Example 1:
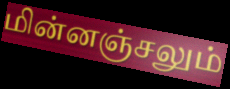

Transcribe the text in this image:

மின்னஞ்சலும்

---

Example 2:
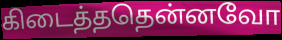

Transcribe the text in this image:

கிடைத்ததென்னவோ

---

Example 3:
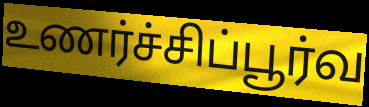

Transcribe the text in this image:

உணர்ச்சிப்பூர்வ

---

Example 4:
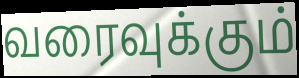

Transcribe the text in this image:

வரைவுக்கும்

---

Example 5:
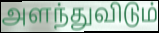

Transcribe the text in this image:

அளந்துவிடும்